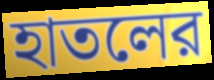
হাতলের